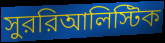
সুররিআলিস্টিক